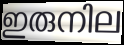
ഇരുനില